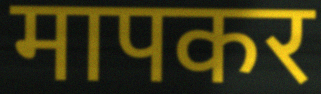
मापकर